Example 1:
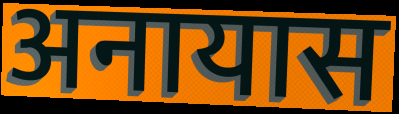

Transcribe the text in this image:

अनायास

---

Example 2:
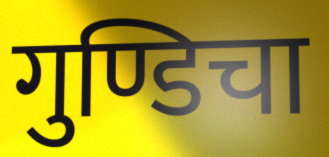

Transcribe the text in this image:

गुण्डिचा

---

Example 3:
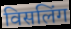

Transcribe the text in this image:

विसलिंग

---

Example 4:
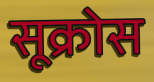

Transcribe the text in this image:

सूक्रोस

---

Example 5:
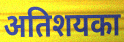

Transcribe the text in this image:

अतिशयका